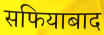
सफियाबाद